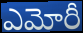
ఎమోరీ